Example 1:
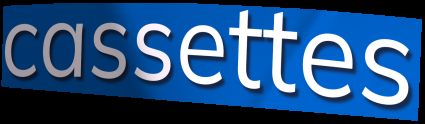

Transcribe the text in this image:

cassettes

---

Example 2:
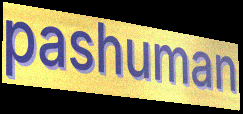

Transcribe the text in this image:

pashuman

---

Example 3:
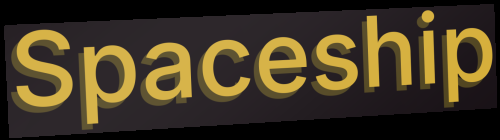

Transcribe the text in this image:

Spaceship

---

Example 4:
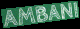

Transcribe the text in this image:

AMBANI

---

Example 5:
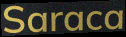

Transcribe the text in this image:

Saraca